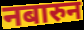
नबारुन